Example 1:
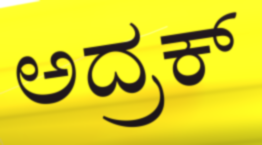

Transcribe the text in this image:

ಅದ್ರಕ್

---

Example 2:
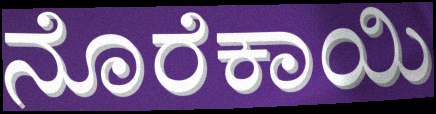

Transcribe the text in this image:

ನೊರೆಕಾಯಿ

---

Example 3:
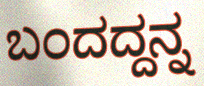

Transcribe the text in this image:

ಬಂದದ್ದನ್ನ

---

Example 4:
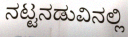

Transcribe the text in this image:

ನಟ್ಟನಡುವಿನಲ್ಲಿ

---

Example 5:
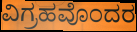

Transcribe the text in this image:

ವಿಗ್ರಹವೊಂದರ